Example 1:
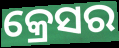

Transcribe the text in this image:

କ୍ରେସର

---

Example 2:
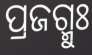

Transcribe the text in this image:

ପ୍ରଜଗ୍ମୁଃ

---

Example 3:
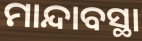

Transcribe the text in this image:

ମାନ୍ଦାବସ୍ଥା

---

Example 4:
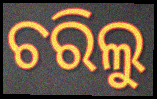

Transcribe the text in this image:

ଚରିଲୁ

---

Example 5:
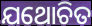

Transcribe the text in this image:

ଯଥୋଚିତ